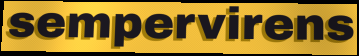
sempervirens